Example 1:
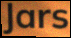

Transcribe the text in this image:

Jars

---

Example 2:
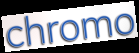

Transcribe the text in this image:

chromo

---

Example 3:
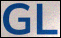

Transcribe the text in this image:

GL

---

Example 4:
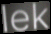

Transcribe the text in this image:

lek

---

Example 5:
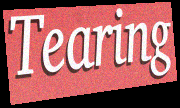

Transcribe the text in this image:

Tearing